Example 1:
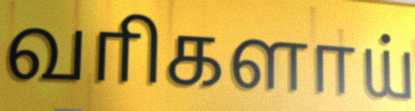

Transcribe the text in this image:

வரிகளாய்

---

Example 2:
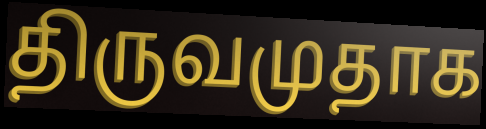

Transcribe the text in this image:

திருவமுதாக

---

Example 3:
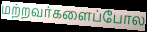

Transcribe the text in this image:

மற்றவர்களைப்போல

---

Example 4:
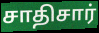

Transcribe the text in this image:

சாதிசார்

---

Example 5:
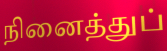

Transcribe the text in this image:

நினைத்துப்